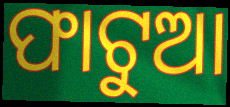
ଫାଟୁଆ